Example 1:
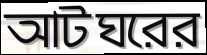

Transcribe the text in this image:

আটঘরের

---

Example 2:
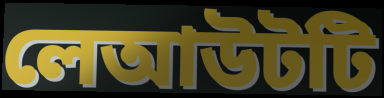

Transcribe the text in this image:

লেআউটটি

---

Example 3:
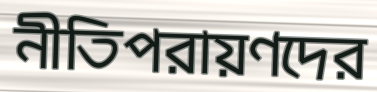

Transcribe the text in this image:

নীতিপরায়ণদের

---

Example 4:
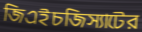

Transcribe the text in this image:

জিএইচজিস্যাটের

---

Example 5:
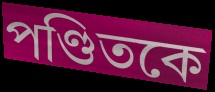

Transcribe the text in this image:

পণ্ডিতকে